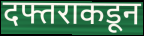
दफ्तराकडून